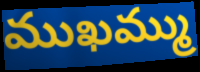
ముఖమ్ము